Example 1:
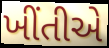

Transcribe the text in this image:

ખીંતીએ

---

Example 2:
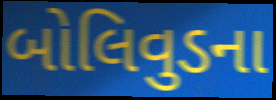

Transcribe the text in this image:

બોલિવુડના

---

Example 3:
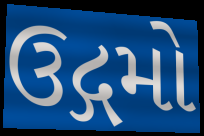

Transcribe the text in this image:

ઉદ્ગમો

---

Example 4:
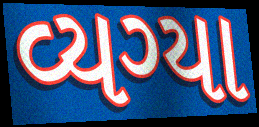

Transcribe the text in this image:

વ્યગ્યા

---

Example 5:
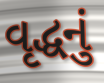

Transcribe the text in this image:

વૃદ્ધનું